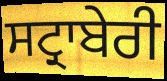
ਸਟ੍ਰਾਬੇਰੀ